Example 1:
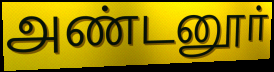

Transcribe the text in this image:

அண்டனூர்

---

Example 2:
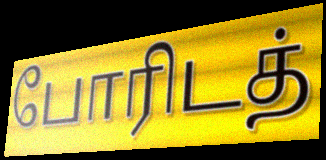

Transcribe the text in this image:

போரிடத்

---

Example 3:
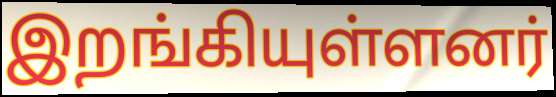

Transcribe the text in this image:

இறங்கியுள்ளனர்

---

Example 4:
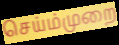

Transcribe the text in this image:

செய்ம்முறை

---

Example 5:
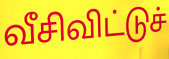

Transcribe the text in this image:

வீசிவிட்டுச்